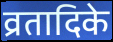
व्रतादिके